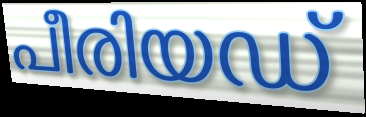
പീരിയഡ്